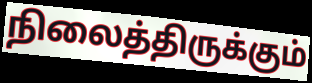
நிலைத்திருக்கும்